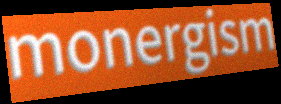
monergism